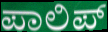
ಪಾಲಿಪ್